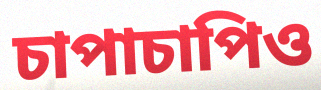
চাপাচাপিও